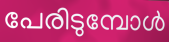
പേരിടുമ്പോൾ